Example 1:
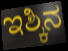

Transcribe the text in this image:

ಇಶ್ಕಿನ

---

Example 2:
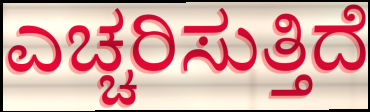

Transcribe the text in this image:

ಎಚ್ಚರಿಸುತ್ತಿದೆ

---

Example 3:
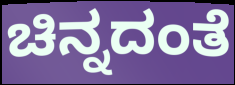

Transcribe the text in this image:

ಚಿನ್ನದಂತೆ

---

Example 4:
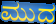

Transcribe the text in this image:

ಮುದ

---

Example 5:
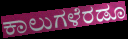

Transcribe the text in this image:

ಕಾಲುಗಳೆರಡೂ